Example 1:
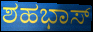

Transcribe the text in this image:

ಶಹಭಾಸ್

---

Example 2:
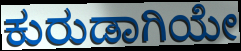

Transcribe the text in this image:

ಕುರುಡಾಗಿಯೇ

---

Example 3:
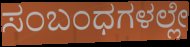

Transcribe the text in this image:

ಸಂಬಂಧಗಳಲ್ಲೇ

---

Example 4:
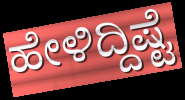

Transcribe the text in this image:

ಹೇಳಿದ್ದಿಷ್ಟೆ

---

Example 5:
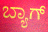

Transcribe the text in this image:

ಬ್ಯಾಗ್